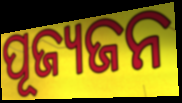
ପୂଜ୍ୟଜନ